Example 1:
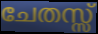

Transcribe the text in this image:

ചേതസ്സ്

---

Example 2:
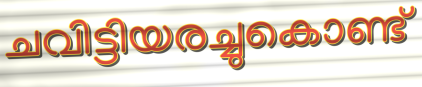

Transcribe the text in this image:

ചവിട്ടിയരച്ചുകൊണ്ട്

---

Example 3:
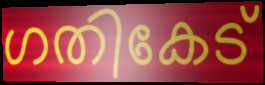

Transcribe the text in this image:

ഗതികേട്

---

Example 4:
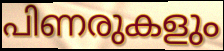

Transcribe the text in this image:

പിണരുകളും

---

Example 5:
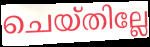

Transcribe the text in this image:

ചെയ്തില്ലേ